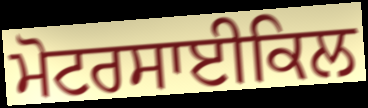
ਮੋਟਰਸਾਈਕਿਲ